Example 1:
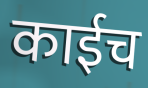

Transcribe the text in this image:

काईच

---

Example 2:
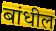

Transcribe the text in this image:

बांधील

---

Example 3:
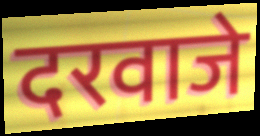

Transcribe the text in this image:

दरवाजे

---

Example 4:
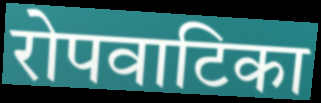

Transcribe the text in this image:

रोपवाटिका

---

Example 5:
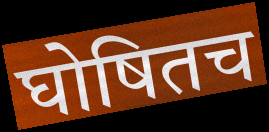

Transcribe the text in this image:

घोषितच